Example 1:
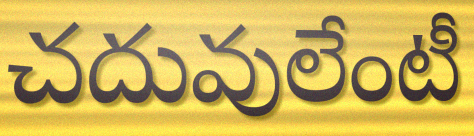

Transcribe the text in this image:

చదువులేంటీ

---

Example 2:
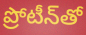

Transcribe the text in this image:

ప్రోటీన్‌తో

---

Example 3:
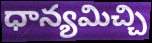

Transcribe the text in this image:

ధాన్యమిచ్చి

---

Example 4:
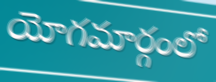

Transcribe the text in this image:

యోగమార్గంలో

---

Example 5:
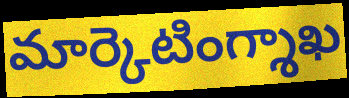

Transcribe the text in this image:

మార్కెటింగ్శాఖ